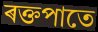
ৰক্তপাতে